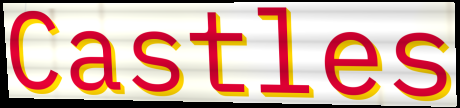
Castles